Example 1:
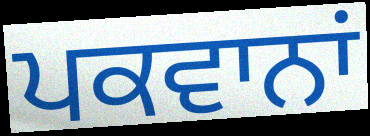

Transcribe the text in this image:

ਪਕਵਾਨਾਂ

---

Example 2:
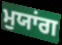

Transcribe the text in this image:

ਮੁਯਾਂਗ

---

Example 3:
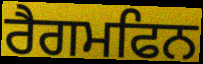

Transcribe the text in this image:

ਰੈਗਮਫਿਨ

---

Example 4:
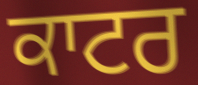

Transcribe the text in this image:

ਕਾਟਰ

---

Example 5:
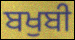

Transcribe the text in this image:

ਬਖੁਬੀ